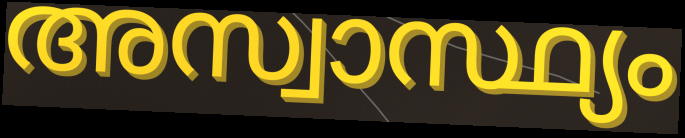
അസ്വാസ്ഥ്യം